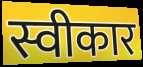
स्‍वीकार